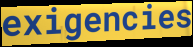
exigencies